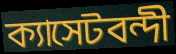
ক্যাসেটবন্দী